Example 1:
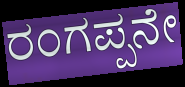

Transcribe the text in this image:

ರಂಗಪ್ಪನೇ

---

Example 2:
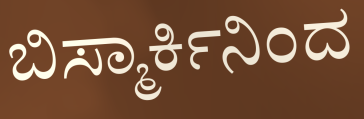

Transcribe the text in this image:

ಬಿಸ್ಮಾರ್ಕಿನಿಂದ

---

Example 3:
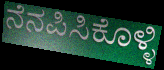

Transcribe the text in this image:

ನೆನಪಿಸಿಕೊಳ್ಳಿ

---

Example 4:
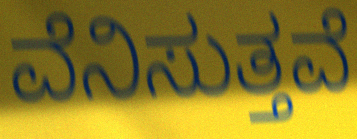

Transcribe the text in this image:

ವೆನಿಸುತ್ತವೆ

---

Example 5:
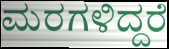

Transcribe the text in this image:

ಮರಗಳಿದ್ದರೆ